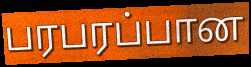
பரபரப்பான